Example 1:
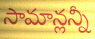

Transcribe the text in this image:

సామాన్లన్నీ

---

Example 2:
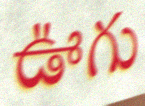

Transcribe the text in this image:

ఊగు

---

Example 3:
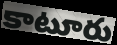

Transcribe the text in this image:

కాటూరు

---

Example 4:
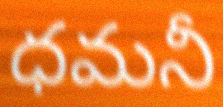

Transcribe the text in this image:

ధమనీ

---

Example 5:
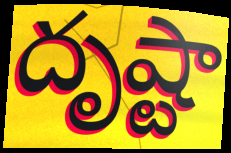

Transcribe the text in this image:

దృష్టా